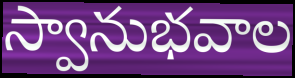
స్వానుభవాల